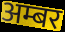
अम्‍बर